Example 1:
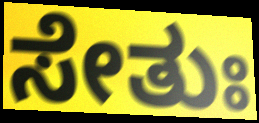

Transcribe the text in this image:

ಸೇತುಃ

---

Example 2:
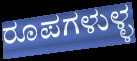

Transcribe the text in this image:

ರೂಪಗಳುಳ್ಳ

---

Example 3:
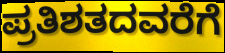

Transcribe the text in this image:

ಪ್ರತಿಶತದವರೆಗೆ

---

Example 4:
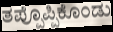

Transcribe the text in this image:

ತಪ್ಪೊಪ್ಪಿಕೊಂಡು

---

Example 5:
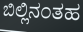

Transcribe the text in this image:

ಬಿಲ್ಲಿನಂತಹ